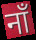
नाँ